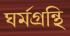
ঘর্মগ্রন্থি